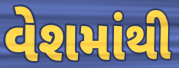
વેશમાંથી